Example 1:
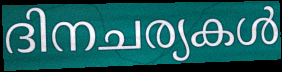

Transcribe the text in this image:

ദിനചര്യകൾ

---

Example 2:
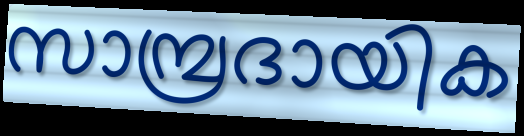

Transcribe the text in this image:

സാമ്പ്രദായിക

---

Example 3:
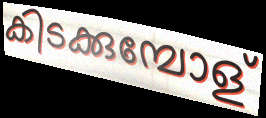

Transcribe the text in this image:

കിടക്കുമ്പോള്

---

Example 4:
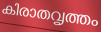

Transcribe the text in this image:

കിരാതവൃത്തം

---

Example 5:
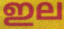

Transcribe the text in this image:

ഇല